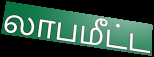
லாபமீட்ட